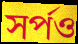
সর্পও